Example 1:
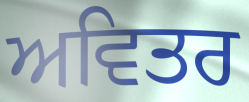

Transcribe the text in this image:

ਅਵਿਤਰ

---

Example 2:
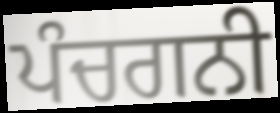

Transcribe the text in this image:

ਪੰਚਗਨੀ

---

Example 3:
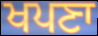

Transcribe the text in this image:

ਖਪਣਾ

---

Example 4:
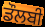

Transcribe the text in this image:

ਡੌਲਬੀ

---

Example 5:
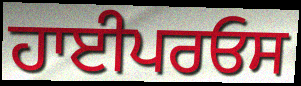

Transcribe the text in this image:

ਹਾਈਪਰਓਸ